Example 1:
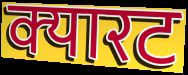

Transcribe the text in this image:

क्यारट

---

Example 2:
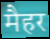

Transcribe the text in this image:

मैहर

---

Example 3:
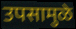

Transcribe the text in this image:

उपसामुळे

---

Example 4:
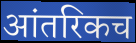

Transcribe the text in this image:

आंतरिकच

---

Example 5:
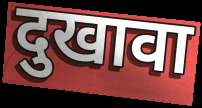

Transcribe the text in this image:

दुखावा